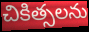
చికిత్సలను